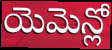
యెమెన్లో